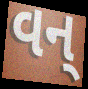
વન્